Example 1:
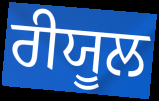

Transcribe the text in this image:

ਰੀਯੂਲ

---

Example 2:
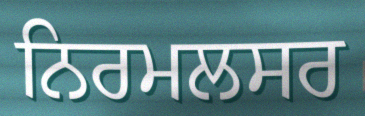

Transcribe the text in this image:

ਨਿਰਮਲਸਰ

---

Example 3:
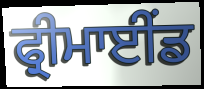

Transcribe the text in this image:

ਫ੍ਰੀਮਾਈਂਡ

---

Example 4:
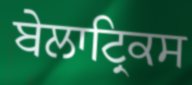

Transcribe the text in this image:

ਬੇਲਾਟ੍ਰਿਕਸ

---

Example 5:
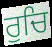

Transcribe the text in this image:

ਰੁਚਿ